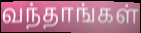
வந்தாங்கள்